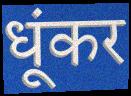
धूंकर